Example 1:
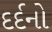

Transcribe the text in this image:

દર્દનો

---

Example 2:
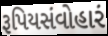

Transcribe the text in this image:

રૂપિયસંવોહારં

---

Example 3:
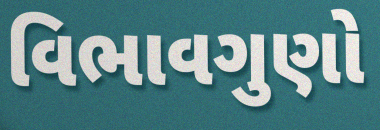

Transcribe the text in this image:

વિભાવગુણો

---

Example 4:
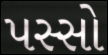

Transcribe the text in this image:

પસ્સો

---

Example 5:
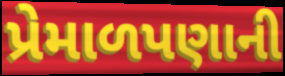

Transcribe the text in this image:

પ્રેમાળપણાની